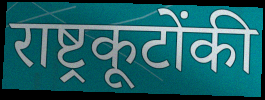
राष्ट्रकूटोंकी